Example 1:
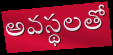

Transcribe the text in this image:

అవస్థలతో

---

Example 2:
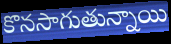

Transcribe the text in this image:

కొనసాగుతున్నాయి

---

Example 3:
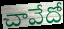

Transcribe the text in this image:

చావేదో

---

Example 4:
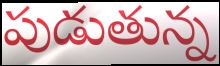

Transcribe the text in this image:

పుడుతున్న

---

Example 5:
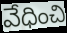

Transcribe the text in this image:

వేధించి